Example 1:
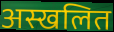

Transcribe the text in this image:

अस्खलित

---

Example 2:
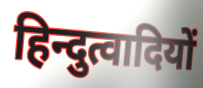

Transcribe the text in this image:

हिन्दुत्वादियों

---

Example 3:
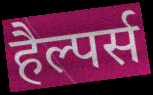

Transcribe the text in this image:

हैल्पर्स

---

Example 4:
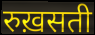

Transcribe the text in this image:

रुख़सती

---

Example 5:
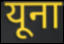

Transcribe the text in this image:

यूना